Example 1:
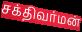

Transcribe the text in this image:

சக்திவர்மன்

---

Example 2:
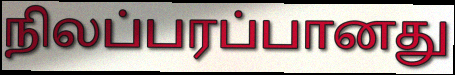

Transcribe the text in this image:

நிலப்பரப்பானது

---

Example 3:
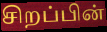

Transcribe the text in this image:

சிறப்பின்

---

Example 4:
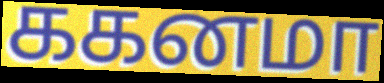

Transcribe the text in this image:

ககனமா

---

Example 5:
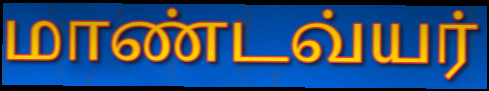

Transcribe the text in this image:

மாண்டவ்யர்